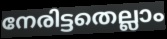
നേരിട്ടതെല്ലാം